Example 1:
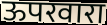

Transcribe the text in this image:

ऊपरवारा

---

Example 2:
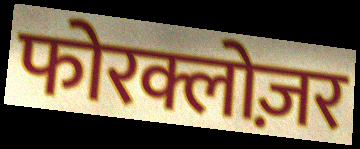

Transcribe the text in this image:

फोरक्लोज़र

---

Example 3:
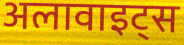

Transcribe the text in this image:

अलावाइट्स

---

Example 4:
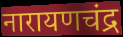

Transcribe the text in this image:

नारायणचंद्र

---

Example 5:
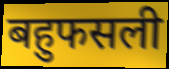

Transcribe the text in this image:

बहुफसली